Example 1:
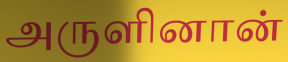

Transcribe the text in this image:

அருளினான்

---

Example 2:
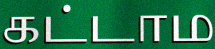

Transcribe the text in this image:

கட்டாம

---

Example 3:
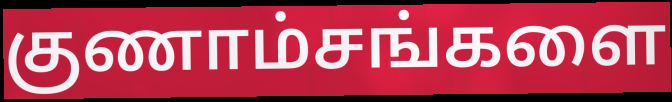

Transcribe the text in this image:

குணாம்சங்களை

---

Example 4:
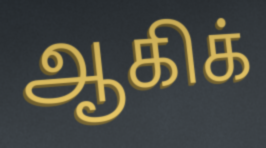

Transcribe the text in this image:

ஆகிக்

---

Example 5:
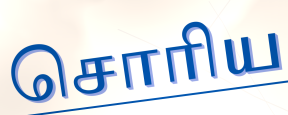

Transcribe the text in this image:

சொரிய